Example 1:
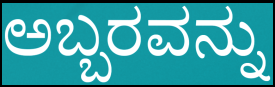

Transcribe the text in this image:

ಅಬ್ಬರವನ್ನು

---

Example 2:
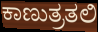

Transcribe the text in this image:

ಕಾಣುತ್ರತಲಿ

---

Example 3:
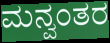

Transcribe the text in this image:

ಮನ್ವಂತರ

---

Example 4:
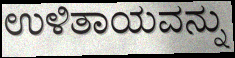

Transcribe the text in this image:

ಉಳಿತಾಯವನ್ನು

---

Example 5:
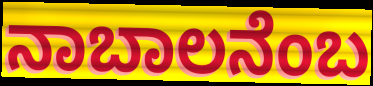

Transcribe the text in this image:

ನಾಬಾಲನೆಂಬ